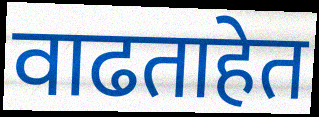
वाढताहेत